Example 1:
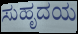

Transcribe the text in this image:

ಸುಹೃದಯ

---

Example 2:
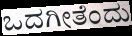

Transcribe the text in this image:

ಒದಗೀತೆಂದು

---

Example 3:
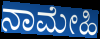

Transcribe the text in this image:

ನಾಮೇಹಿ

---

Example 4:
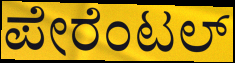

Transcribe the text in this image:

ಪೇರೆಂಟಲ್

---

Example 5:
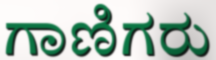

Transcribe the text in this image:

ಗಾಣಿಗರು